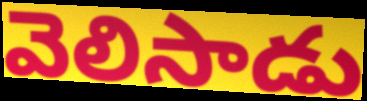
వెలిసాడు